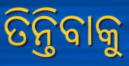
ତିନ୍ତିବାକୁ